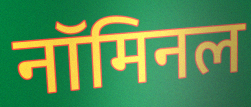
नॉमिनल